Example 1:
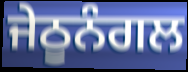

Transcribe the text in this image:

ਜੇਠੂਨੰਗਲ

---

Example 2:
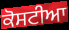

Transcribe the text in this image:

ਕੋਸਟੀਆ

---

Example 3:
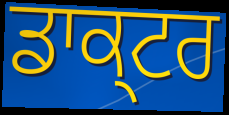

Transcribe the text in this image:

ਡਾਕ੍ਟਰ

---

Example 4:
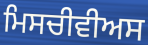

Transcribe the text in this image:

ਮਿਸਚੀਵੀਅਸ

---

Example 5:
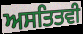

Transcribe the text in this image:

ਅਸਤਿਤਵੀ